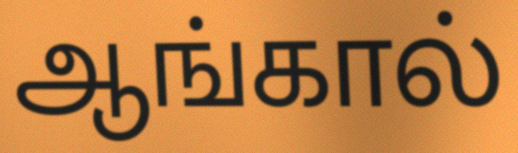
ஆங்கால்